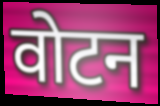
वोटन